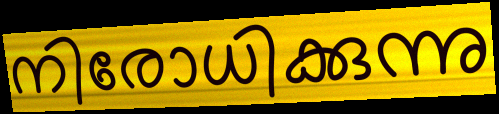
നിരോധിക്കുന്നു